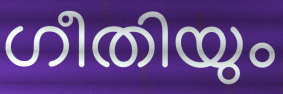
ഗീതിയും